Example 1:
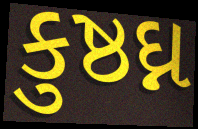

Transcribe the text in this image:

કુષ્ઠઘ્ન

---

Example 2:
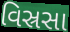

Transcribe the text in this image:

વિસ્રસા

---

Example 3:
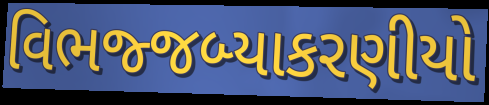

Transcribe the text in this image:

વિભજ્જબ્યાકરણીયો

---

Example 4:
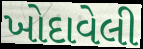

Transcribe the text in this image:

ખોદાવેલી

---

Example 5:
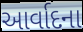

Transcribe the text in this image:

આર્વાદના